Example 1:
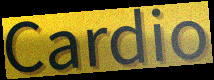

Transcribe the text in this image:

Cardio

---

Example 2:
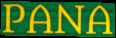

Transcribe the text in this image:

PANA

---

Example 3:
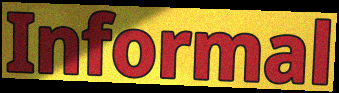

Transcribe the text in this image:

Informal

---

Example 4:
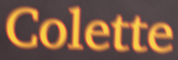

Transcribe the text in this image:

Colette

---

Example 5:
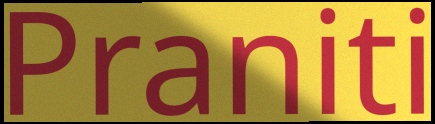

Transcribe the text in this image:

Praniti